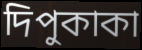
দিপুকাকা